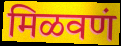
मिळवणं